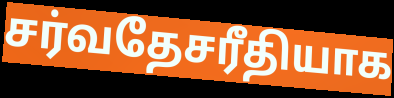
சர்வதேசரீதியாக